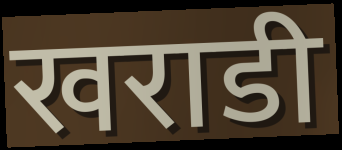
खराडी